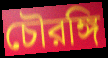
চৌরঙ্গি